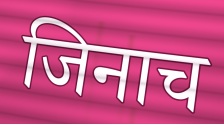
जिनाच